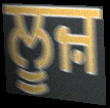
ਲੂਜ਼